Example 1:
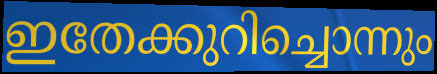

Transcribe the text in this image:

ഇതേക്കുറിച്ചൊന്നും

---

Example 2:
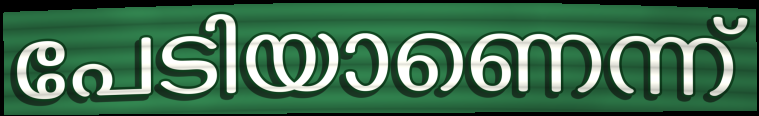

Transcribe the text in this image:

പേടിയാണെന്ന്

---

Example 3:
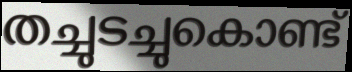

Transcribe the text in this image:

തച്ചുടച്ചുകൊണ്ട്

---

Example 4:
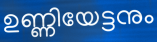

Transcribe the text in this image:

ഉണ്ണിയേട്ടനും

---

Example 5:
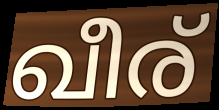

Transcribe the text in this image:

ഖീര്